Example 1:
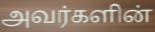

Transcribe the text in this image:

அவர்களின்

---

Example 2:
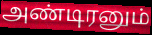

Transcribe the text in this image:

அண்டிரனும்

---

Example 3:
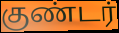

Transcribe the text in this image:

குண்டர்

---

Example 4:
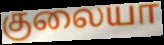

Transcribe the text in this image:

குலையா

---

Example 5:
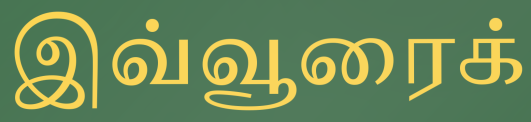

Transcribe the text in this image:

இவ்வூரைக்